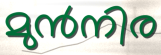
മുൻനിര